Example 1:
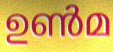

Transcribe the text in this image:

ഉൺമ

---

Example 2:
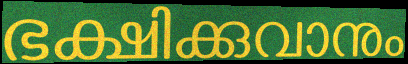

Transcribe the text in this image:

ഭക്ഷിക്കുവാനും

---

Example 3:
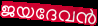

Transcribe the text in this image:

ജയദേവൻ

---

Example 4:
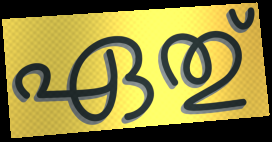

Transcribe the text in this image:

ഏതു്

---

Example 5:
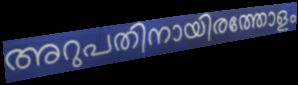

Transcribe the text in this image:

അറുപതിനായിരത്തോളം